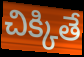
చిక్కితే